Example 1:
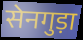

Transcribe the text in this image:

सेनगुड़ा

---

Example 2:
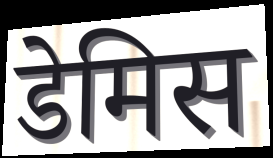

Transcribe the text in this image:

डेमिस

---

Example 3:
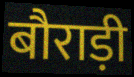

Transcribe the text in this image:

बौराड़ी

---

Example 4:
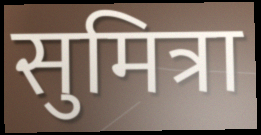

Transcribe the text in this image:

सुमित्रा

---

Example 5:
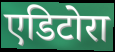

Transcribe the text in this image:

एडिटोरा